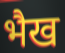
भैख